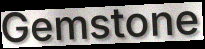
Gemstone